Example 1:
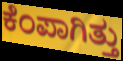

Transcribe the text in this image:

ಕೆಂಪಾಗಿತ್ತು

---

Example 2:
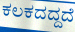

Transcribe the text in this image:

ಕಲಕದದ್ದದೆ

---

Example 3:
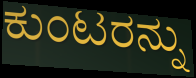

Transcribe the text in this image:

ಕುಂಟರನ್ನು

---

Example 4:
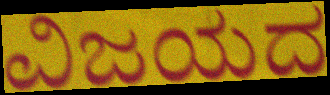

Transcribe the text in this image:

ವಿಜಯದ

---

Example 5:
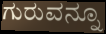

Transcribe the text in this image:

ಗುರುವನ್ನೂ